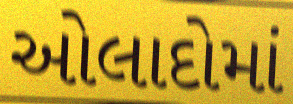
ઓલાદોમાં